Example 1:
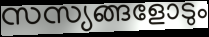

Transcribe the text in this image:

സസ്യങ്ങളോടും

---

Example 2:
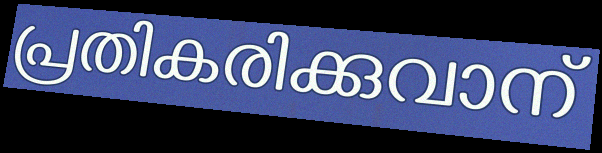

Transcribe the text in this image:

പ്രതികരിക്കുവാന്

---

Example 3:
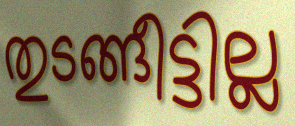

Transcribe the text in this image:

തുടങ്ങീട്ടില്ല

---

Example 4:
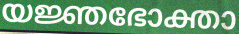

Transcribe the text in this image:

യജ്ഞഭോക്താ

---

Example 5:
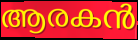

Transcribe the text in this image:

ആരകൻ